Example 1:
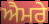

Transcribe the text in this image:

ਐਮਰੇ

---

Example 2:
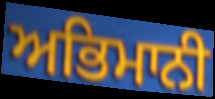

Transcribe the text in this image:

ਅਭਿਮਾਨੀ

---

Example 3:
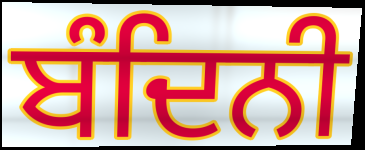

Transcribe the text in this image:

ਬੰਦਿਨੀ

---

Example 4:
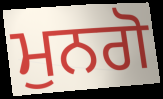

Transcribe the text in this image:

ਮੁਨਗੋ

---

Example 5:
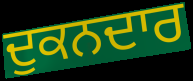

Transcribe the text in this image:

ਦੁਕਨਦਾਰ